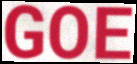
GOE